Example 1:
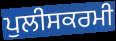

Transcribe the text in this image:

ਪੁਲੀਸਕਰਮੀ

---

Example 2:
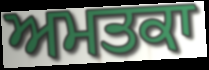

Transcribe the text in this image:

ਅਮਤਕਾ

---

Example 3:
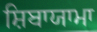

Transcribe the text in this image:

ਸ਼ਿਬਾਯਾਮਾ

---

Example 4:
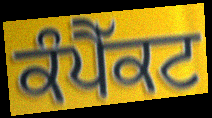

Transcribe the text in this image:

ਕੰਪੈੱਕਟ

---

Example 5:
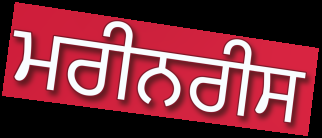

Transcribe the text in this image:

ਮਰੀਨਰੀਸ